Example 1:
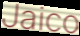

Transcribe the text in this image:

Jaico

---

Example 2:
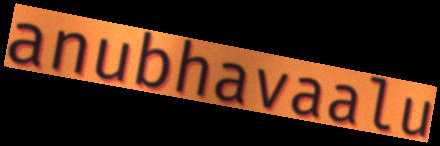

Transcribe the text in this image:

anubhavaalu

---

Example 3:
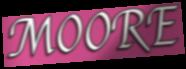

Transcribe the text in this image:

MOORE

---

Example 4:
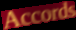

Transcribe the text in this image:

Accords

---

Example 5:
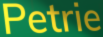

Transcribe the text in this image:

Petrie